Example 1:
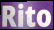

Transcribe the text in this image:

Rito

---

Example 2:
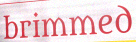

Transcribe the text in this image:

brimmed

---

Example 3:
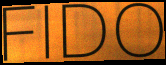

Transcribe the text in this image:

FIDO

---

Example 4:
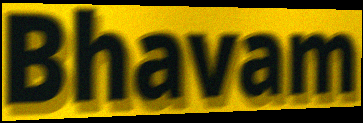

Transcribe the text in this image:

Bhavam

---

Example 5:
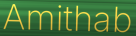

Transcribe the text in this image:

Amithab